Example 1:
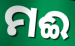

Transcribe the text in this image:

ମଈ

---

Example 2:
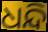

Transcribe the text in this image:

ଧନ୍ଦି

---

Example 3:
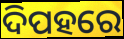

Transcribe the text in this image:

ଦିପହରେ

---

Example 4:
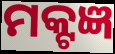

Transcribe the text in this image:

ମକ୍ଟଜ୍ଞ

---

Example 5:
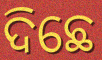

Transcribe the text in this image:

ଦିଛେ